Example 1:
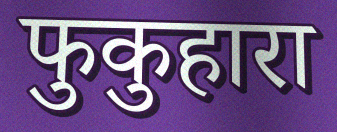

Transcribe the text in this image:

फुकुहारा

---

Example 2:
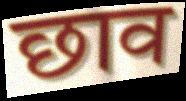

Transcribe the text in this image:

छाव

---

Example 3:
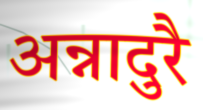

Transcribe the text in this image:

अन्नादुरै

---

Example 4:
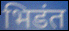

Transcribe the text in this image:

भिडंत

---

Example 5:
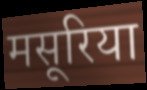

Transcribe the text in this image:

मसूरिया